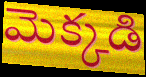
మెక్కడి